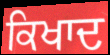
ਕਿਖਾਦ